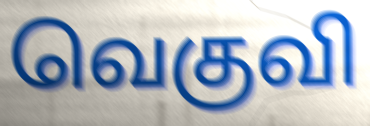
வெகுவி